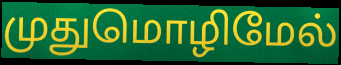
முதுமொழிமேல்